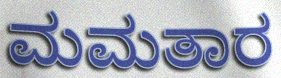
ಮಮತಾರ